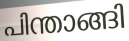
പിന്താങ്ങി